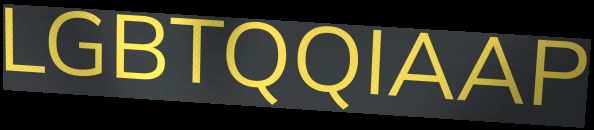
LGBTQQIAAP